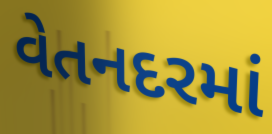
વેતનદરમાં